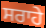
ਸਰਾਹੇ